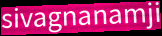
sivagnanamji